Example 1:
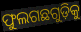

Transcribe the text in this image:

ଫୁଲଗଛଗୁଡ଼ିକୁ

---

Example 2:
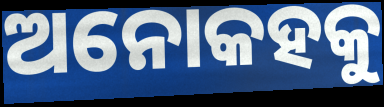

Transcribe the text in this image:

ଅନୋକହକୁ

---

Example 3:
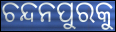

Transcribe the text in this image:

ଚନ୍ଦନପୁରକୁ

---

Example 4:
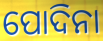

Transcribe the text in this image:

ପୋଦିନା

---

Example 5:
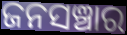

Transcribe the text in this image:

ଜନସଞ୍ଚାର